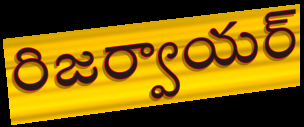
రిజర్వాయర్